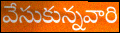
వేసుకున్నవారి